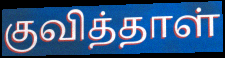
குவித்தாள்